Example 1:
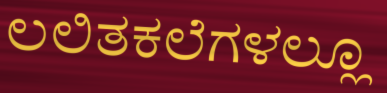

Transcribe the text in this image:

ಲಲಿತಕಲೆಗಳಲ್ಲೂ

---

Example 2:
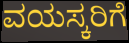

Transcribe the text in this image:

ವಯಸ್ಕರಿಗೆ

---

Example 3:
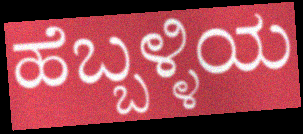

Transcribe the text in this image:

ಹೆಬ್ಬಳ್ಳಿಯ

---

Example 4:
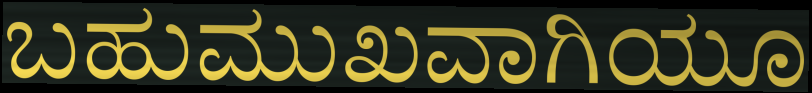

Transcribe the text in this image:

ಬಹುಮುಖವಾಗಿಯೂ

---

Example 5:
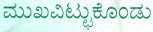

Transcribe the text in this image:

ಮುಖವಿಟ್ಟುಕೊಂಡು